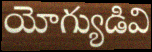
యోగ్యుడివి